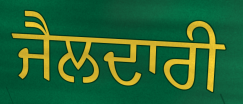
ਜੈਲਦਾਰੀ